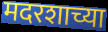
मदरशाच्या